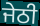
ਜੇਠੀ